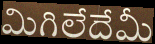
మిగిలేదేమీ